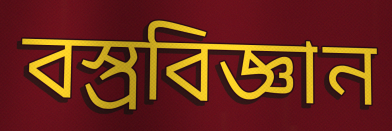
বস্ত্রবিজ্ঞান